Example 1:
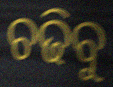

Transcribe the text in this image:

ଚଢିବୁ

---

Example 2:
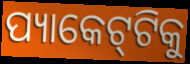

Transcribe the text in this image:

ପ୍ୟାକେଟ୍‌ଟିକୁ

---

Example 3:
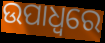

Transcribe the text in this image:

ଉପାଧ୍ଵରେ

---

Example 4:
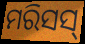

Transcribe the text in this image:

ମରିସସ୍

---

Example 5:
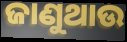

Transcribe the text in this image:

ଜାଣୁଥାଉ